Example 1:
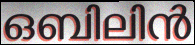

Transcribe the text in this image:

ഒബിലിൻ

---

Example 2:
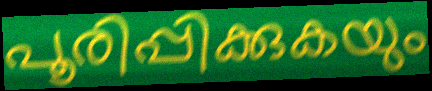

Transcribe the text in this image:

പൂരിപ്പിക്കുകയും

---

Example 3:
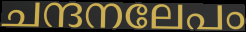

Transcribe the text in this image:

ചന്ദനലേപം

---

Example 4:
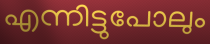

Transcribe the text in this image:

എന്നിട്ടുപോലും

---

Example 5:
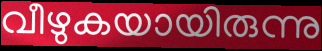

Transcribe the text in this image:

വീഴുകയായിരുന്നു